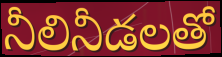
నీలినీడలతో